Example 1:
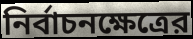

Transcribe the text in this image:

নির্বাচনক্ষেত্রের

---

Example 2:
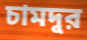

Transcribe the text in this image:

চামদুর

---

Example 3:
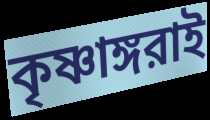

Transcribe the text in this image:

কৃষ্ণাঙ্গরাই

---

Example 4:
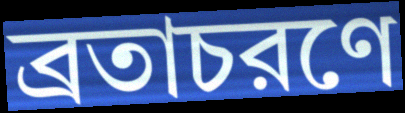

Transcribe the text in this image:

ব্রতাচরণে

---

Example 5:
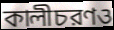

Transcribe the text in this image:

কালীচরণও